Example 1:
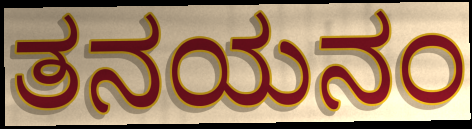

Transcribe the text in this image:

ತನಯನಂ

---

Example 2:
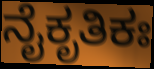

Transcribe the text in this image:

ನೈಕೃತಿಕಃ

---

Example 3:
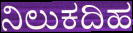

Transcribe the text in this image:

ನಿಲುಕದಿಹ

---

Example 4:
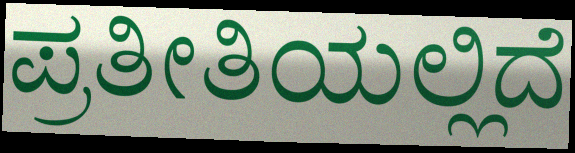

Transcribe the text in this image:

ಪ್ರತೀತಿಯಲ್ಲಿದೆ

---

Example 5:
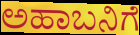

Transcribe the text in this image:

ಅಹಾಬನಿಗೆ